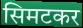
सिमटकर